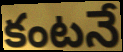
కంటనే